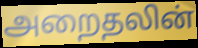
அறைதலின்